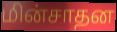
மின்சாதன